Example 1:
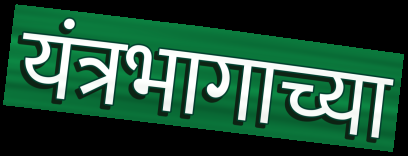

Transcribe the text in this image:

यंत्रभागाच्या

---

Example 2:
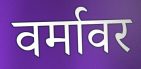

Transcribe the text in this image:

वर्मावर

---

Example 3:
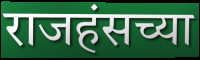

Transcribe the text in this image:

राजहंसच्या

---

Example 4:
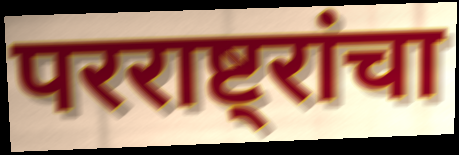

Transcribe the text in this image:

परराष्ट्रांचा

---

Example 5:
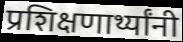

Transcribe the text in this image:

प्रशिक्षणार्थ्यांनी